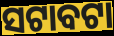
ସଟାବଟା